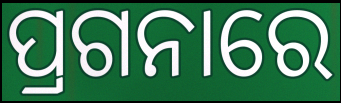
ପ୍ରଗନାରେ